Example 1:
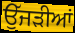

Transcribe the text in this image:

ਉੱਜੜੀਆਂ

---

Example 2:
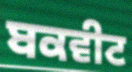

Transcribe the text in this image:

ਬਕਵੀਟ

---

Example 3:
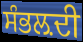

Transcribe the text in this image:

ਸੰਭਲ਼ਦੀ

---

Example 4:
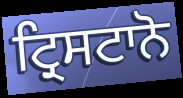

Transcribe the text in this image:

ਟ੍ਰਿਸਟਾਨੋ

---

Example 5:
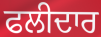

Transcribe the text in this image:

ਫਲੀਦਾਰ